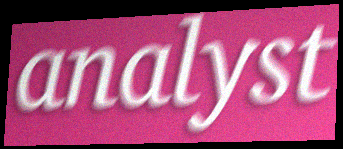
analyst